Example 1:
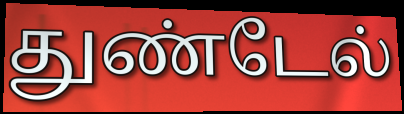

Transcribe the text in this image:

துண்டேல்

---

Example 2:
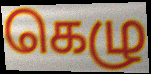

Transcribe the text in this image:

கெழு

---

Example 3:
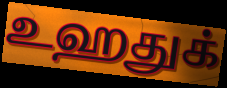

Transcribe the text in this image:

உஹதுக்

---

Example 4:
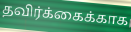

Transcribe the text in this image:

தவிர்க்கைக்காக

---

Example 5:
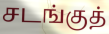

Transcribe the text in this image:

சடங்குத்